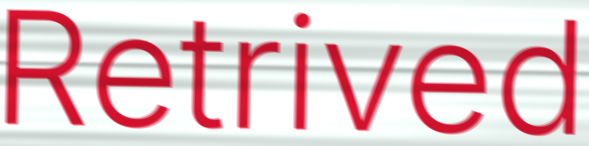
Retrived